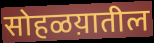
सोहळय़ातील